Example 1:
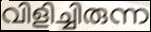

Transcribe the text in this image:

വിളിച്ചിരുന്ന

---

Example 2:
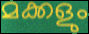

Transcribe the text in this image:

മക്കളും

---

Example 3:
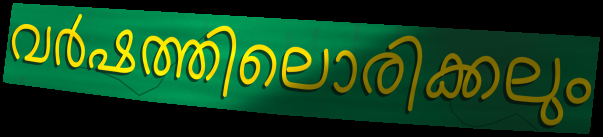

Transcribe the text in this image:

വർഷത്തിലൊരിക്കലും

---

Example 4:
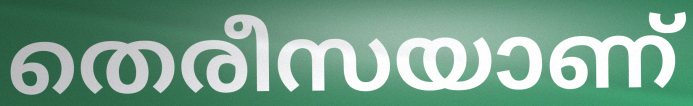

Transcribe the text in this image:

തെരീസയാണ്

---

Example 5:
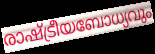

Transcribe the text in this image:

രാഷ്ട്രീയബോധ്യവും